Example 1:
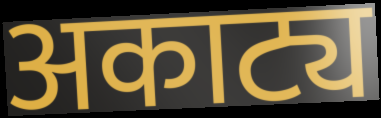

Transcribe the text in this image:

अकाट्य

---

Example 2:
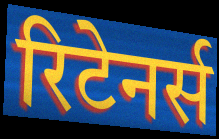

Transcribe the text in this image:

रिटेनर्स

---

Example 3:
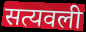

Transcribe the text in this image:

सत्यवली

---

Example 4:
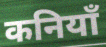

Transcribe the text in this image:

कनियाँ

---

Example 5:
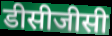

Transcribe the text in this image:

डीसीजीसी